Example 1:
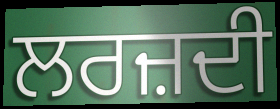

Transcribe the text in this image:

ਲਰਜ਼ਦੀ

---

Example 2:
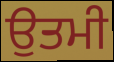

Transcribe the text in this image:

ਉਤਮੀ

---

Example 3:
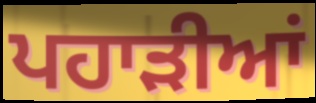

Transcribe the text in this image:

ਪਹਾਡ਼ੀਆਂ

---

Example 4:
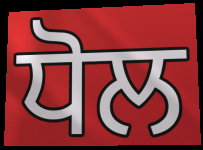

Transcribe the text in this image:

ਧੋਲ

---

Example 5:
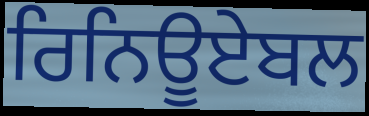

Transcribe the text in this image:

ਰਿਨਿਊਏਬਲ